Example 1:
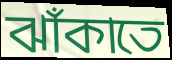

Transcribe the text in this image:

ঝাঁকাতে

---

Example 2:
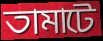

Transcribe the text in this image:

তামাটে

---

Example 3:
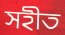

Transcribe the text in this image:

সহীত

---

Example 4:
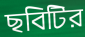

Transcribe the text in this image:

ছবিটির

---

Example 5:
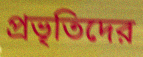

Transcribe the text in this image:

প্রভৃতিদের